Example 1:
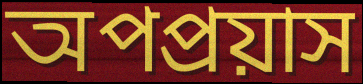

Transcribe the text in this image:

অপপ্রয়াস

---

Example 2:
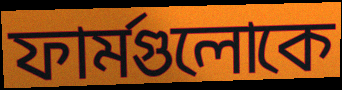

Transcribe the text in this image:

ফার্মগুলোকে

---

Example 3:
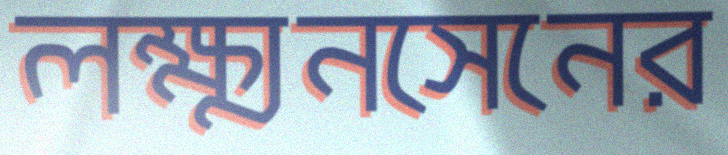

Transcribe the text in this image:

লক্ষ্মনসেনের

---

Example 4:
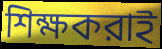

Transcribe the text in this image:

শিক্ষকরাই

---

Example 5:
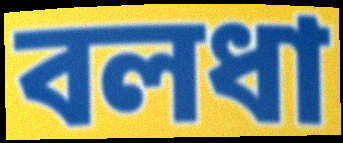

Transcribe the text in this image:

বলধা